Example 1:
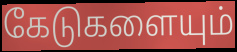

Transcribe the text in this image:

கேடுகளையும்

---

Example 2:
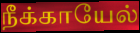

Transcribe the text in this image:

நீக்காயேல்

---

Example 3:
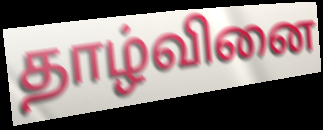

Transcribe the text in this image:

தாழ்வினை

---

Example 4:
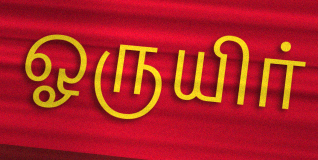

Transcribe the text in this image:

ஓருயிர்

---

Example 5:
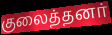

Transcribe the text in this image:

குலைத்தனர்